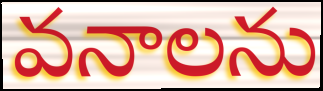
వనాలను